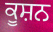
ਕੂਸ਼ਨ